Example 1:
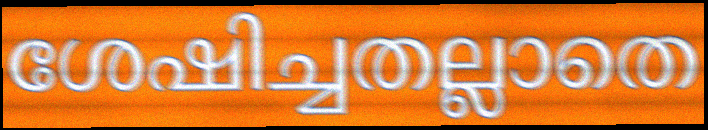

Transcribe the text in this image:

ശേഷിച്ചതല്ലാതെ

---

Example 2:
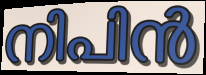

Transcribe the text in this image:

നിപിൻ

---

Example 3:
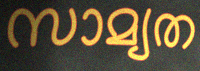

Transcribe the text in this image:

സാമ്യത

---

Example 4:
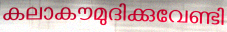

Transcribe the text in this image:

കലാകൗമുദിക്കുവേണ്ടി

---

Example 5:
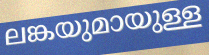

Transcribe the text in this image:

ലങ്കയുമായുള്ള